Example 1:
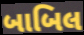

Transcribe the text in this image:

બાબિલ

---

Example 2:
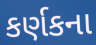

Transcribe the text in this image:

કર્ણકના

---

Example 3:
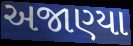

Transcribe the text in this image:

અજાણ્યા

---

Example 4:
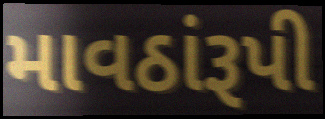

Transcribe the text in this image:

માવઠાંરૂપી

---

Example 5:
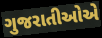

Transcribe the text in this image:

ગુજરાતીઓએ